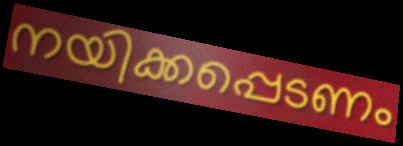
നയിക്കപ്പെടണം